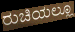
ರುಚಿಯಲ್ಲೂ